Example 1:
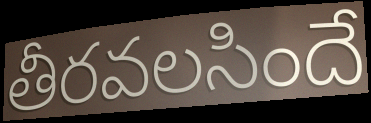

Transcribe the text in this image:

తీరవలసిందే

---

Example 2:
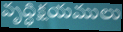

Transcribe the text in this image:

వృద్ధిక్షయములు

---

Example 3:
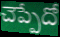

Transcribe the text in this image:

చెప్పేదో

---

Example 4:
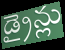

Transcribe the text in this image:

డ్రైన్లు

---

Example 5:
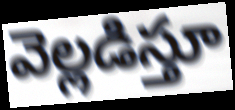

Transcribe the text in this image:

వెల్లడిస్తూ